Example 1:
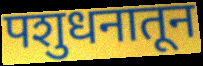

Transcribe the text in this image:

पशुधनातून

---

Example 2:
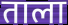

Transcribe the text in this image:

ताला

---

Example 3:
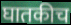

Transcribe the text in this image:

घातकीच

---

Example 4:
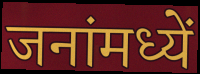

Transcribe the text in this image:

जनांमध्यें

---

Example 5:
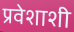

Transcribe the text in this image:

प्रवेशाशी